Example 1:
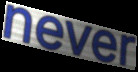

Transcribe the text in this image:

never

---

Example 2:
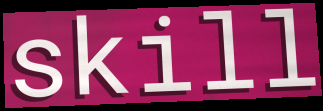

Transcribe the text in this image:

skill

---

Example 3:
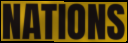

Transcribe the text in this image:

NATIONS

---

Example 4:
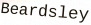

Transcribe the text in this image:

Beardsley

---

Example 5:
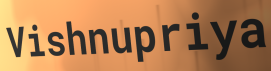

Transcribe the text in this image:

Vishnupriya